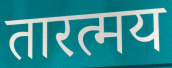
तारत्मय